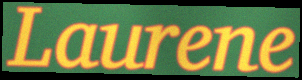
Laurene